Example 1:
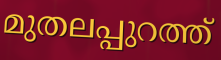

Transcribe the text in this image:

മുതലപ്പുറത്ത്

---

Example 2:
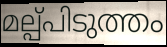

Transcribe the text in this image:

മല്പ്പിടുത്തം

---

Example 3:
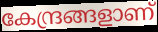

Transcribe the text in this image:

കേന്ദ്രങ്ങളാണ്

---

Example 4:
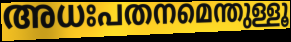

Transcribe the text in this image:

അധഃപതനമെന്തുള്ളൂ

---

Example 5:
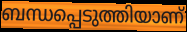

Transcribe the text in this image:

ബന്ധപ്പെടുത്തിയാണ്